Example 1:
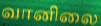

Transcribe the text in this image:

வானிலை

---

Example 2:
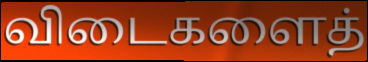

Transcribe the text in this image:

விடைகளைத்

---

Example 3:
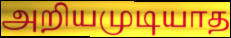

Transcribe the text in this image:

அறியமுடியாத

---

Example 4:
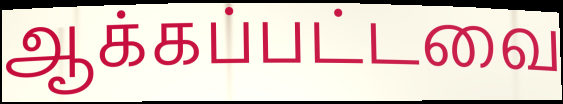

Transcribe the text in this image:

ஆக்கப்பட்டவை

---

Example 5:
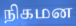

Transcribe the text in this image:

நிகமன